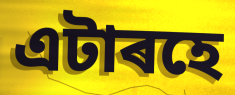
এটাৰহে